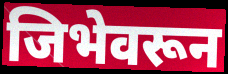
जिभेवरून